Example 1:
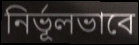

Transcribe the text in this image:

নির্ভূলভাবে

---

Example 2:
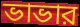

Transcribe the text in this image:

ভাভার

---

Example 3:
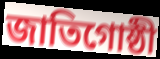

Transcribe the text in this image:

জাতিগোষ্ঠী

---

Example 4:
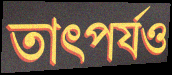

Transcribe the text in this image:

তাৎপর্যও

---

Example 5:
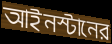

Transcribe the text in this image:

আইনস্টানের